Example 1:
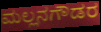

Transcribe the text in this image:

ಮಲ್ಲನಗೌಡರ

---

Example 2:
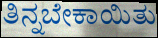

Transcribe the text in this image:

ತಿನ್ನಬೇಕಾಯಿತು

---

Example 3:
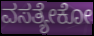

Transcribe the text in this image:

ವಸತ್ಯೇಕೋ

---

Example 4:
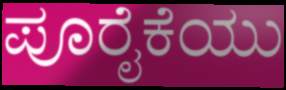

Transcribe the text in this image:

ಪೂರೈಕೆಯು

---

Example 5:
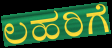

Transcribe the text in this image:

ಲಹರಿಗೆ